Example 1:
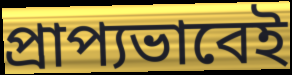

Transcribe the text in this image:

প্রাপ্যভাবেই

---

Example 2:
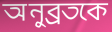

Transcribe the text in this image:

অনুব্রতকে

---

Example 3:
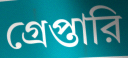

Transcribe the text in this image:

গ্রেপ্তারি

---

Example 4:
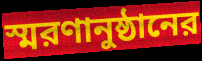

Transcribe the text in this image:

স্মরণানুষ্ঠানের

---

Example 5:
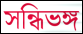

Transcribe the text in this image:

সন্ধিভঙ্গ